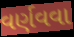
વર્ણવવા